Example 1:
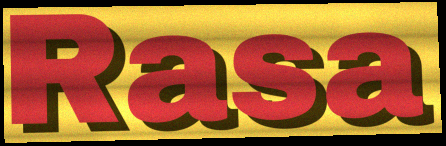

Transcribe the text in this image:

Rasa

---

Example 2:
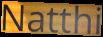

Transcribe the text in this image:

Natthi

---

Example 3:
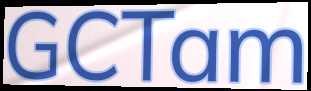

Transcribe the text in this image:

GCTam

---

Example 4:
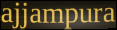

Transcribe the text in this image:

ajjampura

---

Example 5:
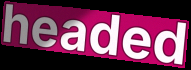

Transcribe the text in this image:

headed